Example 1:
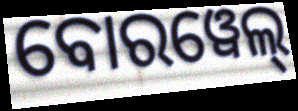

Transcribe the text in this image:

ବୋରୱେଲ୍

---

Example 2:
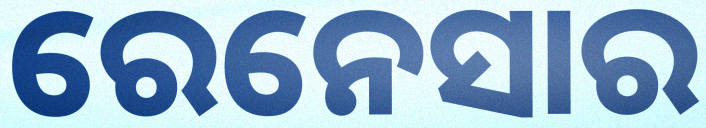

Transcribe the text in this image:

ରେନେସାର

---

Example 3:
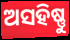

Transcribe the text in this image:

ଅସହିଷ୍ଣୁ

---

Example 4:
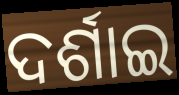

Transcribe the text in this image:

ଦର୍ଶାଇ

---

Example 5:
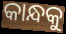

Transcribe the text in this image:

କାନ୍ଧକୁ